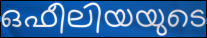
ഒഫീലിയയുടെ